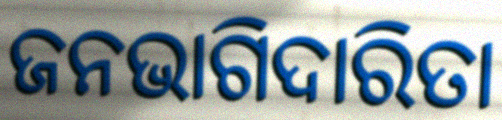
ଜନଭାଗିଦାରିତା